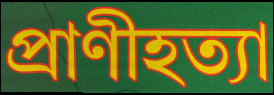
প্রাণীহত্যা